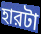
হারটা